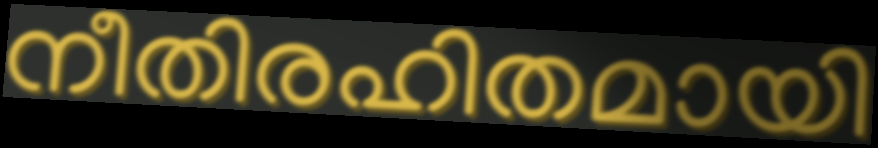
നീതിരഹിതമായി